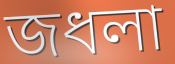
জধলা